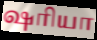
ஷரியா